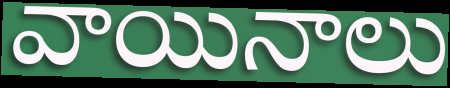
వాయినాలు